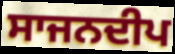
ਸਾਜਨਦੀਪ